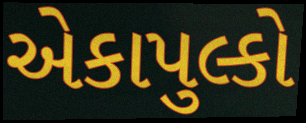
એકાપુલ્કો